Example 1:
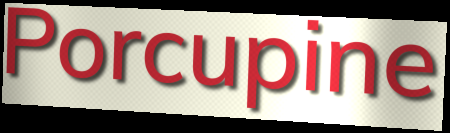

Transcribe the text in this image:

Porcupine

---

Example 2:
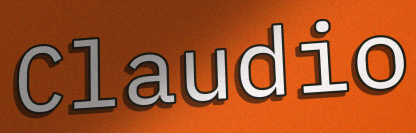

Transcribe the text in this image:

Claudio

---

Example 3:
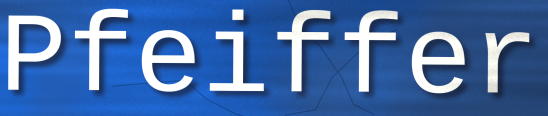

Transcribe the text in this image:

Pfeiffer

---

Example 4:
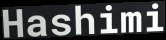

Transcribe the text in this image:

Hashimi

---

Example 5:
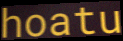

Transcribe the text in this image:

hoatu